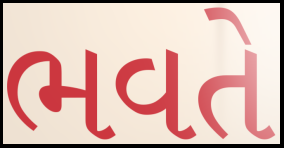
ભવતે